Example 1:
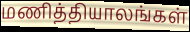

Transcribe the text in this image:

மணித்தியாலங்கள்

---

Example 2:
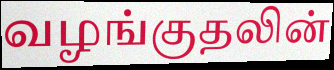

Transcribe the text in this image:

வழங்குதலின்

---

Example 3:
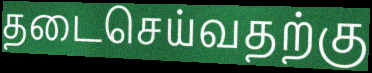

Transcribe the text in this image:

தடைசெய்வதற்கு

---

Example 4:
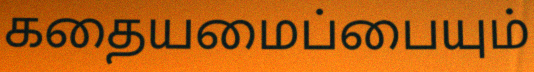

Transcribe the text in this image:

கதையமைப்பையும்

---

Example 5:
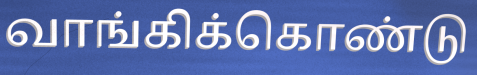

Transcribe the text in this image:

வாங்கிக்கொண்டு